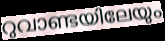
റുവാണ്ടയിലേയും